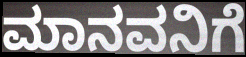
ಮಾನವನಿಗೆ